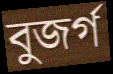
বুজর্গ